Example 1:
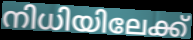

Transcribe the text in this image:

നിധിയിലേക്ക്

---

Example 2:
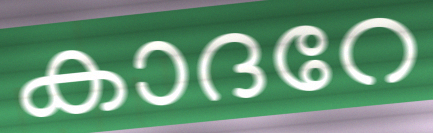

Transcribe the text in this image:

കാദറേ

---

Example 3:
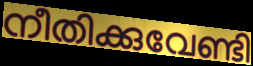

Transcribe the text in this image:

നീതിക്കുവേണ്ടി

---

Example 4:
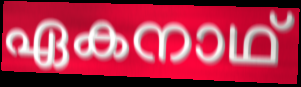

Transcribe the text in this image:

ഏകനാഥ്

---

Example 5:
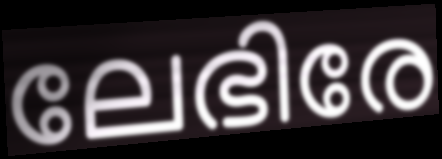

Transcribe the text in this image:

ലേഭിരേ